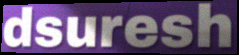
dsuresh